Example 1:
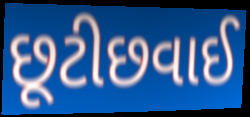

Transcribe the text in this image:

છૂટીછવાઈ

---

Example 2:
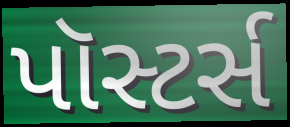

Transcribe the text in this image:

પૉસ્ટર્સ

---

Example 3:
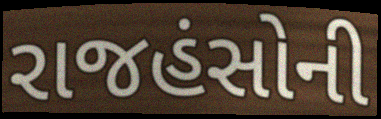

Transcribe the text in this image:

રાજહંસોની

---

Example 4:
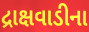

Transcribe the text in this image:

દ્રાક્ષવાડીના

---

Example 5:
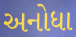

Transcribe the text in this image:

અનોધા